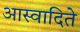
आस्वादिते